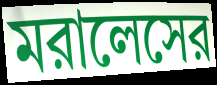
মরালেসের